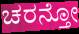
ಚರನ್ತೋ